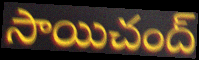
సాయిచంద్